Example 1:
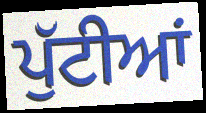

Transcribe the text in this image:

ਪੁੱਟੀਆਂ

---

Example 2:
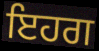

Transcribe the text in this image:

ਇਹਗ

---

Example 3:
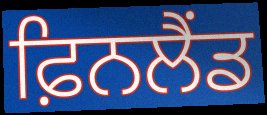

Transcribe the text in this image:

ਫ਼ਿਨਲੈਂਡ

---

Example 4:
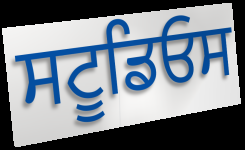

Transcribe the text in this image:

ਸਟੂਡਿਓਸ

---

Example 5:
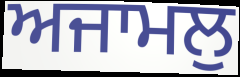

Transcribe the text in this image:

ਅਜਾਮਲੁ